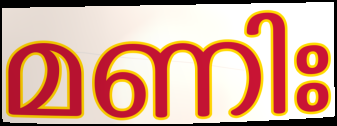
മണിഃ